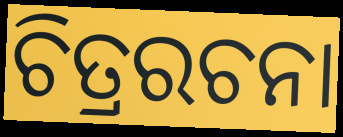
ଚିତ୍ରରଚନା